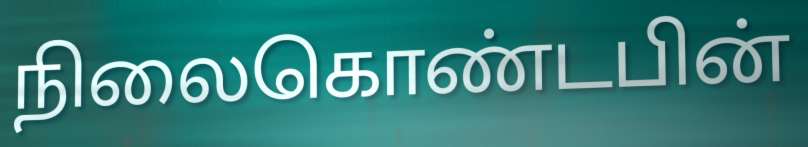
நிலைகொண்டபின்